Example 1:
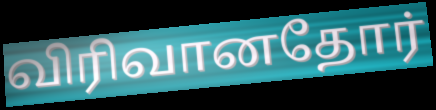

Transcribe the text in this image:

விரிவானதோர்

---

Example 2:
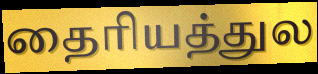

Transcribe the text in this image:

தைரியத்துல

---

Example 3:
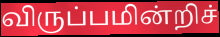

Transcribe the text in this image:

விருப்பமின்றிச்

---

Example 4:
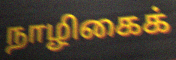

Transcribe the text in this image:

நாழிகைக்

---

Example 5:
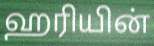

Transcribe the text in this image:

ஹரியின்